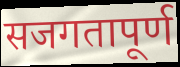
सजगतापूर्ण